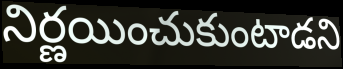
నిర్ణయించుకుంటాడని